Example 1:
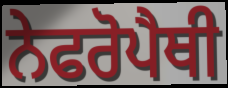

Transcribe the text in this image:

ਨੇਫਰੋਪੈਥੀ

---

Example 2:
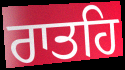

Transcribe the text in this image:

ਰਾਤਹਿ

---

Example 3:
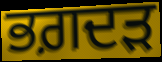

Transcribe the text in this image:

ਭਗ਼ਦੜ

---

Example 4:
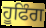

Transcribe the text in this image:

ਹੂਫਿੰਗ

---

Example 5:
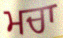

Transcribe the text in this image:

ਮਚਾ